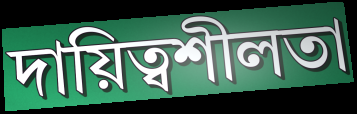
দায়িত্বশীলতা